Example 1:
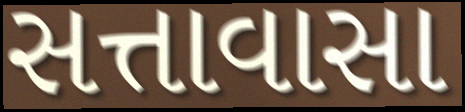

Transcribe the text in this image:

સત્તાવાસા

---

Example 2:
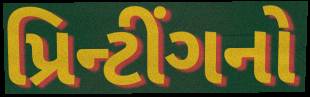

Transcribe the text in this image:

પ્રિન્ટીંગનો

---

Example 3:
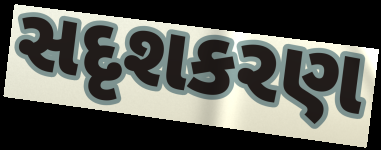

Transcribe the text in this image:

સદૃશકરણ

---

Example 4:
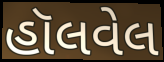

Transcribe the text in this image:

હૉલવેલ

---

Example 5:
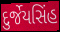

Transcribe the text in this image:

દુર્જેયસિંહ